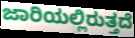
ಜಾರಿಯಲ್ಲಿರುತ್ತದೆ